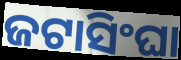
ଜଟାସିଂଘା